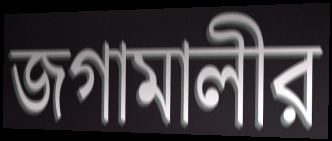
জগামালীর